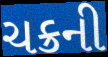
ચક્રની